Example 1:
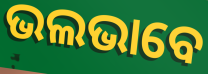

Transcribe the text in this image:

ଭଲଭାବେ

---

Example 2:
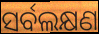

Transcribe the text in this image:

ସର୍ବଲକ୍ଷଣ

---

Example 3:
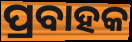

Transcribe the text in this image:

ପ୍ରବାହକ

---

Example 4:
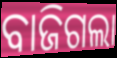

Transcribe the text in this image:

ବାଜିଗଲା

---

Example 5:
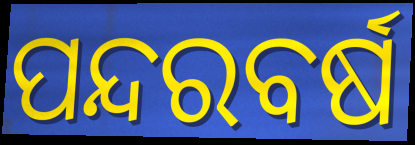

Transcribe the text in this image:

ପନ୍ଦରବର୍ଷ